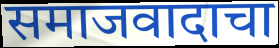
समाजवादाचा